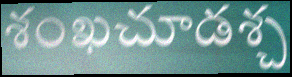
శంఖచూడశ్చ